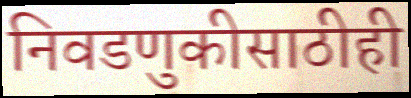
निवडणुकीसाठीही